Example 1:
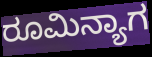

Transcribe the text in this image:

ರೂಮಿನ್ಯಾಗ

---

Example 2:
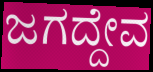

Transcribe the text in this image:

ಜಗದ್ದೇವ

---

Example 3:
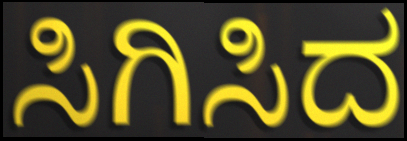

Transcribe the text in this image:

ಸಿಗಿಸಿದ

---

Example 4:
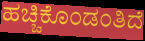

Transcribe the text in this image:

ಹಚ್ಚಿಕೊಂಡಂತಿದೆ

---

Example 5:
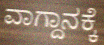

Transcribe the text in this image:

ವಾಗ್ದಾನಕ್ಕೆ